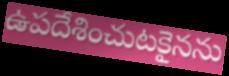
ఉపదేశించుటకైనను